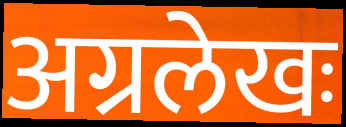
अग्रलेखः